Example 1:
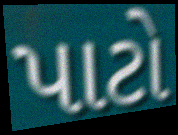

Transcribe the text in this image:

પાટો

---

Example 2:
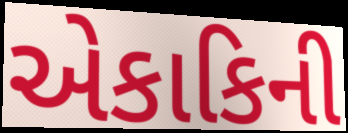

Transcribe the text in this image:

એકાકિની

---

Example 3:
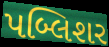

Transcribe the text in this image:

પબ્લિશર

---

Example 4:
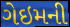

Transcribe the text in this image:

ગેઇમની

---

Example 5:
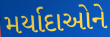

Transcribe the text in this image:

મર્યાદાઓને